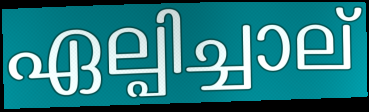
ഏല്പിച്ചാല്